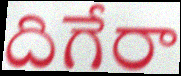
దిగేరా